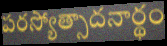
పరస్యోత్సాదనార్థం